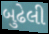
બુઢેલી